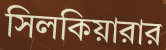
সিলকিয়ারার